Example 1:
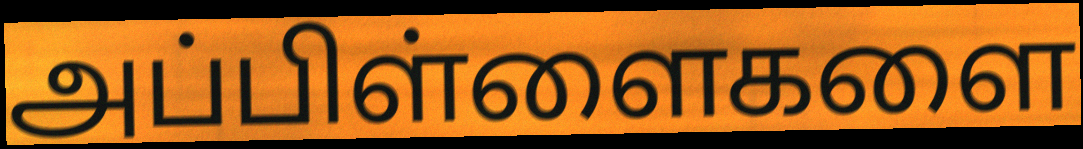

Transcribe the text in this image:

அப்பிள்ளைகளை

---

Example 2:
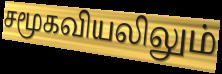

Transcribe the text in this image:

சமூகவியலிலும்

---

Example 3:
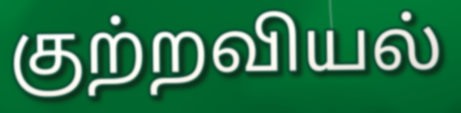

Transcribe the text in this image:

குற்றவியல்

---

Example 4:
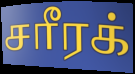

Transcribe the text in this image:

சரீரக்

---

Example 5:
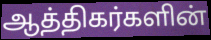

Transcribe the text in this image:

ஆத்திகர்களின்